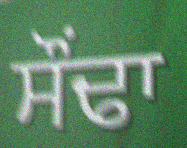
ਸੌਂਢਾ